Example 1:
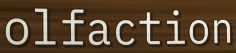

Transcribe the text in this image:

olfaction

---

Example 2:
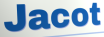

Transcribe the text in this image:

Jacot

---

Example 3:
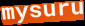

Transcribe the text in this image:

mysuru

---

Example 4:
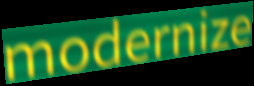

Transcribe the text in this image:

modernize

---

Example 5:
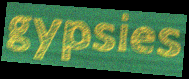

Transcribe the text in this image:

gypsies